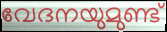
വേദനയുമുണ്ട്